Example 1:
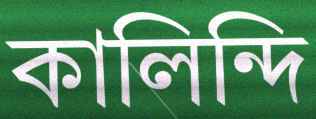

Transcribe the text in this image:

কালিন্দি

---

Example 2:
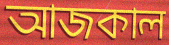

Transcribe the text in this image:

আজকাল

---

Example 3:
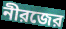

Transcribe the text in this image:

নীরজের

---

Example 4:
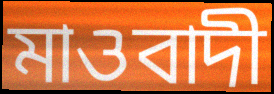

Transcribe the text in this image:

মাওবাদী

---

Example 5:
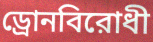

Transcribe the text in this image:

ড্রোনবিরোধী